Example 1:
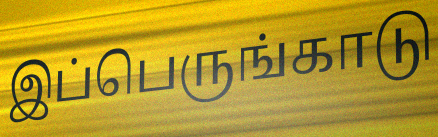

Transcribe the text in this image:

இப்பெருங்காடு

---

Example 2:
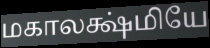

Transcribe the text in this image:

மகாலக்ஷ்மியே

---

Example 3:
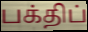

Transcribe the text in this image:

பக்திப்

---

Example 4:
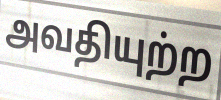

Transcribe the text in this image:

அவதியுற்ற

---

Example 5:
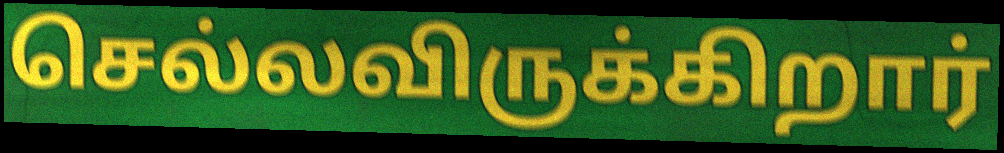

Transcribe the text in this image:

செல்லவிருக்கிறார்